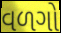
વળગો